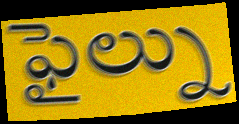
ఫైల్ను